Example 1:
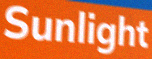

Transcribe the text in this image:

Sunlight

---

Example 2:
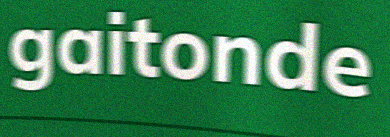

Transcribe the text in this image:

gaitonde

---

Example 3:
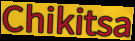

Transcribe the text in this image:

Chikitsa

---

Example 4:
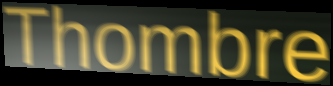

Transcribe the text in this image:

Thombre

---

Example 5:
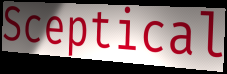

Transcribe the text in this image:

Sceptical